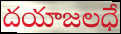
దయాజలధే